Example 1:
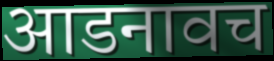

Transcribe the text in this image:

आडनावच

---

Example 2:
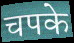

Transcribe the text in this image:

चपके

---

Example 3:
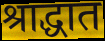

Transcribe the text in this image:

श्राद्धात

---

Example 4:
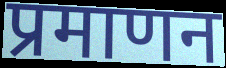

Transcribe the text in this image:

प्रमाणन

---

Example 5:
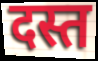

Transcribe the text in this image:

दस्त